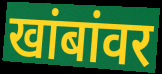
खांबांवर